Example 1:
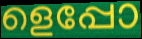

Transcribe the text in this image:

ളെപ്പോ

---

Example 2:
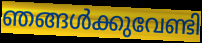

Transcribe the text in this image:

ഞങ്ങൾക്കുവേണ്ടി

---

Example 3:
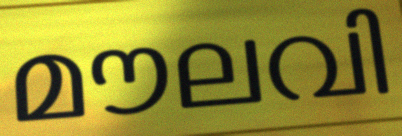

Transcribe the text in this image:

മൗലവി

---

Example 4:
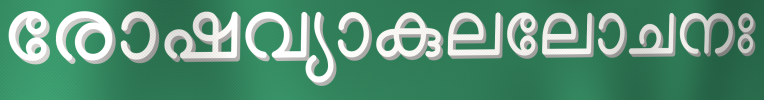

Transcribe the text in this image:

രോഷവ്യാകുലലോചനഃ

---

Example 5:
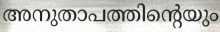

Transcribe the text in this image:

അനുതാപത്തിന്റെയും